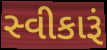
સ્વીકારૂં